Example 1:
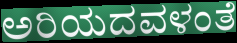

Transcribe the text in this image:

ಅರಿಯದವಳಂತೆ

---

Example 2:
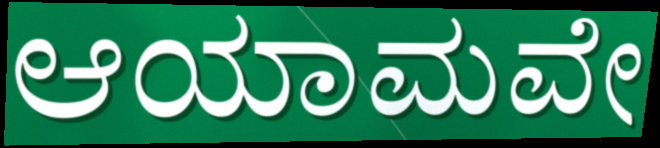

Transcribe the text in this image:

ಆಯಾಮವೇ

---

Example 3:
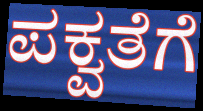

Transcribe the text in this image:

ಪಕ್ವತೆಗೆ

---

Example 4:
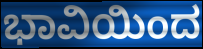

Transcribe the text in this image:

ಭಾವಿಯಿಂದ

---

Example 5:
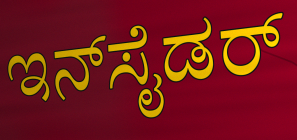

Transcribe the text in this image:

ಇನ್‌ಸೈಡರ್